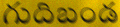
గుదిబండ